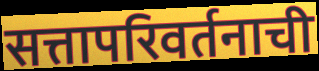
सत्तापरिवर्तनाची